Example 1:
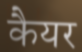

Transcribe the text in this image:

कैयर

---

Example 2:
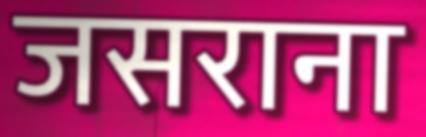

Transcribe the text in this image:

जसराना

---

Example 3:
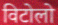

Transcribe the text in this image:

विटोलो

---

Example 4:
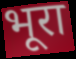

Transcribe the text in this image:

भूरा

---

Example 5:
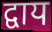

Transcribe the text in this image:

द्वाय